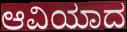
ಆವಿಯಾದ